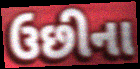
ઉછીના